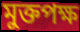
মুক্তপক্ষ